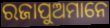
ରଜାପୁଅମାନେ